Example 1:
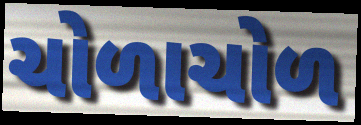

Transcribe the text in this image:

ચોળાચોળ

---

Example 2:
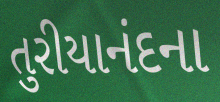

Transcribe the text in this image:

તુરીયાનંદના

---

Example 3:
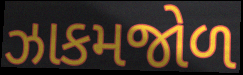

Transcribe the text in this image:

ઝાકમજોળ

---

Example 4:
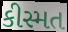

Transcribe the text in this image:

કીસ્મત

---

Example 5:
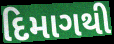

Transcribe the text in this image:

દિમાગથી